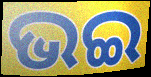
ଭଇ